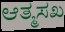
ಆತ್ಮಸಖ